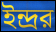
ইন্দ্রর